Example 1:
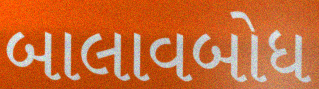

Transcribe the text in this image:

બાલાવબોધ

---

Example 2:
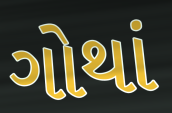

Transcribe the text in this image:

ગોથાં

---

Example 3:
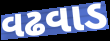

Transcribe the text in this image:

વઢવાડ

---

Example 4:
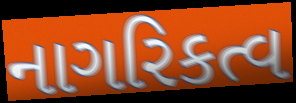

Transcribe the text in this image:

નાગરિકત્વ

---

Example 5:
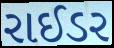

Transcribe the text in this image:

રાઈડર